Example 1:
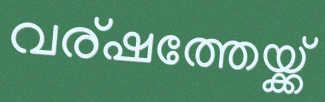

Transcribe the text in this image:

വര്ഷത്തേയ്ക്ക്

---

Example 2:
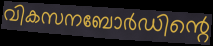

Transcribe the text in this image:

വികസനബോർഡിന്റെ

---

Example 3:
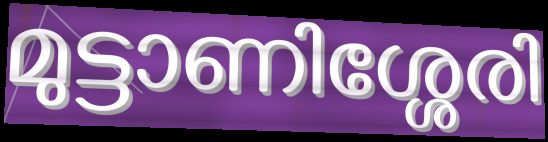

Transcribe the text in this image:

മുട്ടാണിശ്ശേരി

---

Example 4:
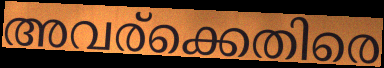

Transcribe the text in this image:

അവര്ക്കെതിരെ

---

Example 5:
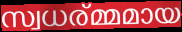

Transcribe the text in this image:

സ്വധര്മ്മമായ